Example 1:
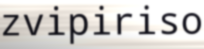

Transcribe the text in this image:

zvipiriso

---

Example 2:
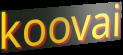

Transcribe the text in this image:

koovai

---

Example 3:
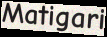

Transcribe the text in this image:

Matigari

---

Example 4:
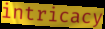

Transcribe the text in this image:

intricacy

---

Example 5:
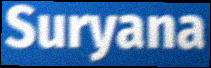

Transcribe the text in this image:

Suryana